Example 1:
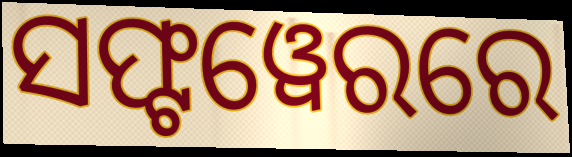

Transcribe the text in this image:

ସଫ୍ଟୱେରରେ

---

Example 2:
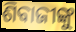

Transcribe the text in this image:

ଶିବାଜୀଙ୍କୁ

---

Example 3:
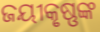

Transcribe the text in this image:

ଜୟୀକୃଷ୍ଣଙ୍କ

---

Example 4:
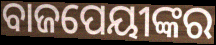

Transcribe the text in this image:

ବାଜପେୟୀଙ୍କର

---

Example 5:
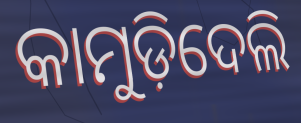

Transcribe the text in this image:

କାମୁଡ଼ିଦେଲି